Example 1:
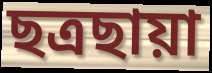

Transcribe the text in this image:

ছত্রছায়া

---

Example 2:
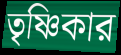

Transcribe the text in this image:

তৃষ্ণিকার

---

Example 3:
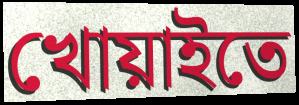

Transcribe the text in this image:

খোয়াইতে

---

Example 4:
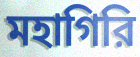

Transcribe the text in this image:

মহাগিরি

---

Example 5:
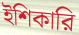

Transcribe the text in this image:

ইশিকারি